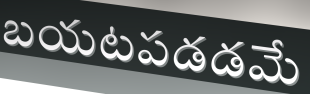
బయటపడడమే